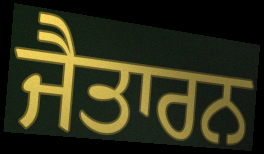
ਜੈਤਾਰਨ